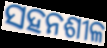
ସହନଶୀଳ